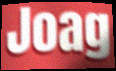
Joag